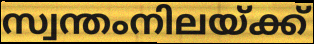
സ്വന്തംനിലയ്ക്ക്